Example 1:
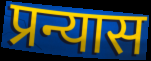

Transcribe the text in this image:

प्रन्यास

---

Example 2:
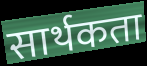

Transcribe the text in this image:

सार्थकता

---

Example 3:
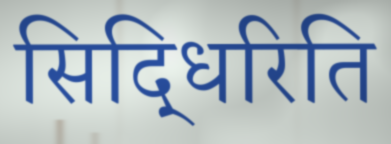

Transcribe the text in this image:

सिद्धिरिति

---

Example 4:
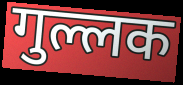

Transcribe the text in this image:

गुल्लक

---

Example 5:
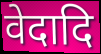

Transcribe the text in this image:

वेदादि